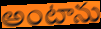
అంటాను